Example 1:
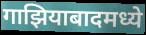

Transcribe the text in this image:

गाझियाबादमध्ये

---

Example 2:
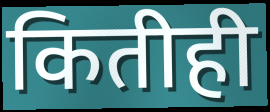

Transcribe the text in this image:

कितीही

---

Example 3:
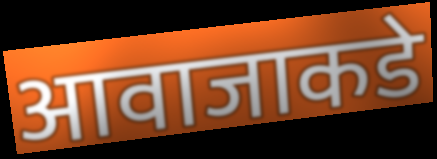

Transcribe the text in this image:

आवाजाकडे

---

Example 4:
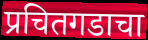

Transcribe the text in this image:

प्रचितगडाचा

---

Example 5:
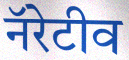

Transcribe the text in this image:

नॅरेटीव